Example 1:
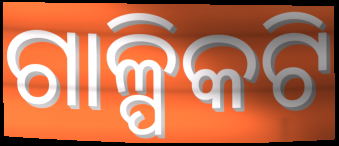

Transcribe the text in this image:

ଗାଳ୍ପିକଟି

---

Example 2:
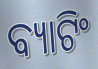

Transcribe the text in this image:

ବ୍ୟାଟିଂ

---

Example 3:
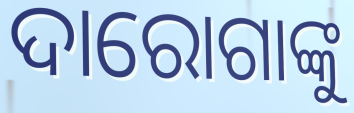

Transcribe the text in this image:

ଦାରୋଗାଙ୍କୁ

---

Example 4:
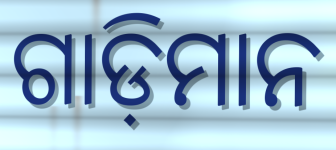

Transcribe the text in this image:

ଗାଡ଼ିମାନ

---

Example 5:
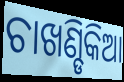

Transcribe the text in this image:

ଚାଖଣ୍ଡିକିଆ